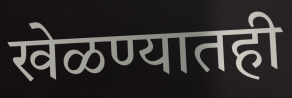
खेळण्यातही